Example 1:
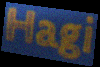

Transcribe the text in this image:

Hagi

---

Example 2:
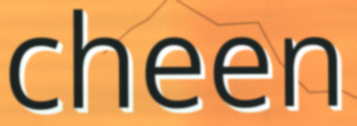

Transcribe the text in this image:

cheen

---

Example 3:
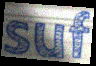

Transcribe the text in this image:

suf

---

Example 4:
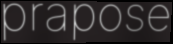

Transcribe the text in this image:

prapose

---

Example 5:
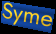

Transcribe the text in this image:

Syme